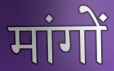
मांगों